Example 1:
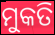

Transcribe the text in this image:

ମୁକତି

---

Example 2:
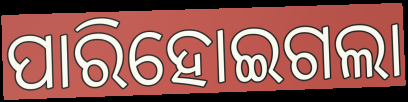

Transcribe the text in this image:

ପାରିହୋଇଗଲା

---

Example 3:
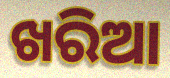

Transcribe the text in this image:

ଖରିଆ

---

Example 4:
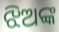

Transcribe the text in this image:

ଝିଅଙ୍କ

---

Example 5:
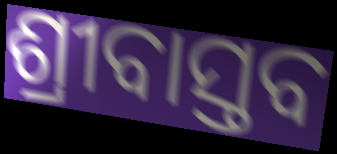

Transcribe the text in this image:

ଶ୍ରୀବାସ୍ତବ